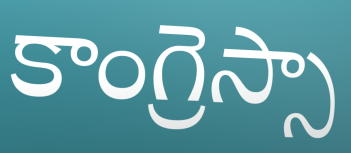
కాంగ్రెస్సా